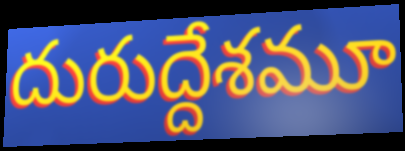
దురుద్దేశమూ